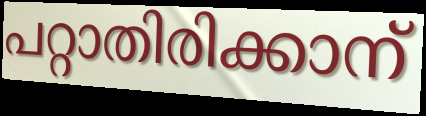
പറ്റാതിരിക്കാന്